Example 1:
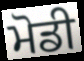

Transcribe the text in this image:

ਮੋਡੀ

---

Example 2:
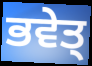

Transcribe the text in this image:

ਭਵੇਤ੍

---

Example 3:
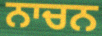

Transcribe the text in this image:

ਨਾਚਨ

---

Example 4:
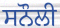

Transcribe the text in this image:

ਸਨੌਲੀ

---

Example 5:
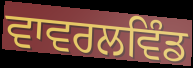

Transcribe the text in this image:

ਵਾਵਰਲਵਿੰਡ